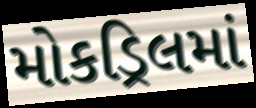
મોકડ્રિલમાં